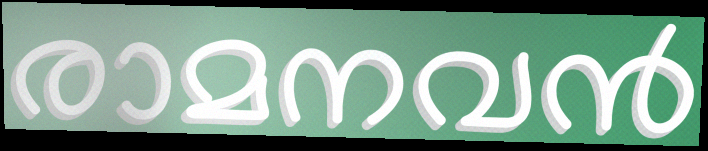
രാമനവൻ